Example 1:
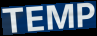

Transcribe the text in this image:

TEMP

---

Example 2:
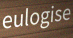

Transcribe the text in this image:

eulogise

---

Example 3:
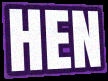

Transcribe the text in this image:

HEN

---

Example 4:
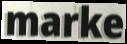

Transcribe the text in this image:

marke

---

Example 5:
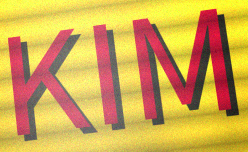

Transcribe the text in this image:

KIM